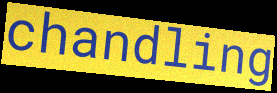
chandling